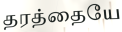
தரத்தையே